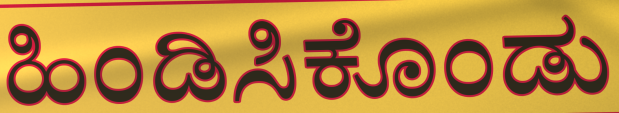
ಹಿಂಡಿಸಿಕೊಂಡು